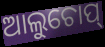
ଆଲୁଚୋପ୍